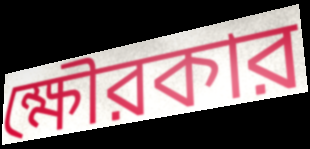
ক্ষৌরকার